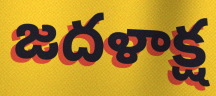
జదళాక్ష